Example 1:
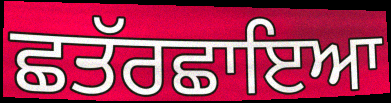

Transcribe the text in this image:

ਛਤੱਰਛਾਇਆ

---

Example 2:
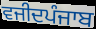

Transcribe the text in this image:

ਵਜੀਦਪੰਜਾਬ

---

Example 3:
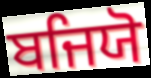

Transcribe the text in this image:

ਬਜਿਯੋ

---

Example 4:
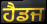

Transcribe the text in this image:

ਹੈਡਜ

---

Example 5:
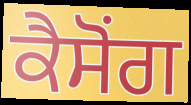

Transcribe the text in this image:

ਕੈਸੋਂਗ